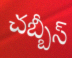
చబ్బీస్